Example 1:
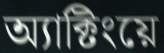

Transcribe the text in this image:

অ্যাক্টিংয়ে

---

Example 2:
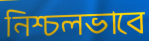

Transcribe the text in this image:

নিশ্চলভাবে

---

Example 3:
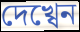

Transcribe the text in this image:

দেখ্বেন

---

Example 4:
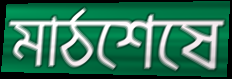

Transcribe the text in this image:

মাঠশেষে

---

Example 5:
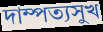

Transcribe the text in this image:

দাম্পত্যসুখ